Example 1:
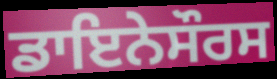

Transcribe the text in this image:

ਡਾਇਨੇਸੌਰਸ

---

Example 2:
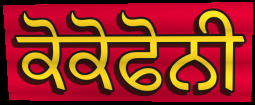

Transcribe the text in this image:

ਕੋਕੋਫੋਨੀ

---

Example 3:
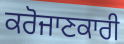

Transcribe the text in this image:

ਕਰੋਜਾਣਕਾਰੀ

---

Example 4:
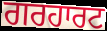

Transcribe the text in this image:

ਗਰਹਾਰਟ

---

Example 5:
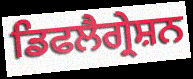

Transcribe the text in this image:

ਡਿਫਲੈਗ੍ਰੇਸ਼ਨ